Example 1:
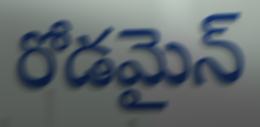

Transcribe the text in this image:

రోడమైన్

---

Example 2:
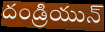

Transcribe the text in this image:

దండ్రియున్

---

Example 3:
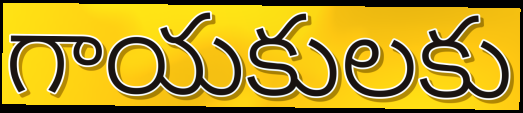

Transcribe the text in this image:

గాయకులకు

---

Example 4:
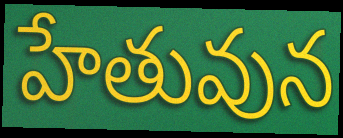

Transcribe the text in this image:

హేతువున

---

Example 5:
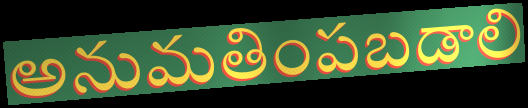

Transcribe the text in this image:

అనుమతింపబడాలి